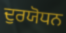
ਦੁਰਯੋਧਨ